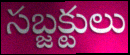
సబ్జక్టులు